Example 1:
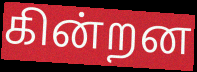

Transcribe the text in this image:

கின்றன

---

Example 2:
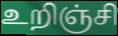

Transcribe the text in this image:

உறிஞ்சி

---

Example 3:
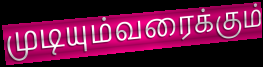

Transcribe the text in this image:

முடியும்வரைக்கும்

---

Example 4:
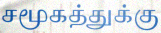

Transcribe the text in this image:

சமூகத்துக்கு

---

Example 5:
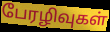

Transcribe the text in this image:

பேரழிவுகள்